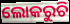
ଲୋକରୁଚି